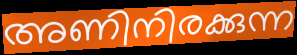
അണിനിരക്കുന്ന